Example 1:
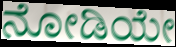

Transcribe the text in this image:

ನೋಡಿಯೇ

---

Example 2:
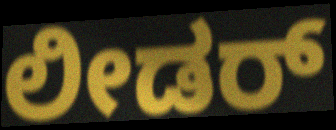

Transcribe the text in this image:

ಲೀಡರ್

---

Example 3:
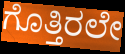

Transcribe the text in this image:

ಗೊತ್ತಿರಲೇ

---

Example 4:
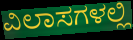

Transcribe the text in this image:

ವಿಲಾಸಗಳಲ್ಲಿ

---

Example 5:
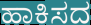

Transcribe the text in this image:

ಹಾಕಿಸದ